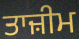
ਤਾਜ਼ੀਮ